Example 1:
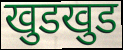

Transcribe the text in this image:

खुडखुड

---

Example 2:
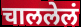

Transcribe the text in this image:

चाललेलं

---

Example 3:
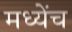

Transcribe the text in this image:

मध्येंच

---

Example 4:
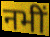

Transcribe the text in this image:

नभीं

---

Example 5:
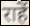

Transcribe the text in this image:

राहें